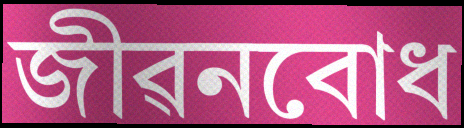
জীৱনবোধ